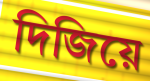
দিজিয়ে